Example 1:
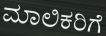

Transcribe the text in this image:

ಮಾಲಿಕರಿಗೆ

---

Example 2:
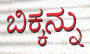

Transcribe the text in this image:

ಬಿಕ್ಕನ್ನು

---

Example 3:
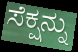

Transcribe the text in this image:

ಸೆಕ್ಷನ್ನು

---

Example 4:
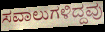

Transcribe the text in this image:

ಸವಾಲುಗಳಿದ್ದವು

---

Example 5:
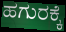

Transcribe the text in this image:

ಹಗುರಕ್ಕೆ